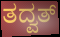
ತದ್ವತ್